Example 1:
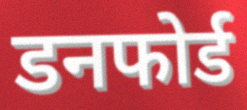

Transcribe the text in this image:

डनफोर्ड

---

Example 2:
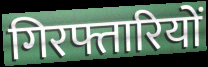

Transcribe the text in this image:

गिरफ्तारियों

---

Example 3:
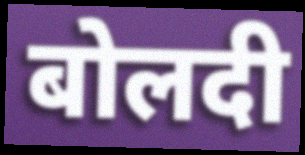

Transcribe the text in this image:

बोलदी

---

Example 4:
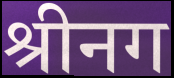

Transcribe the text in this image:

श्रीनग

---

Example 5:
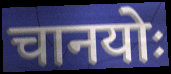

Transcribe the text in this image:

चानयोः